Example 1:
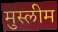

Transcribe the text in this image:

मुस्लीम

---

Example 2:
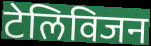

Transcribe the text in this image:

टेलिविजन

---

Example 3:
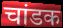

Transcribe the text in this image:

चांडक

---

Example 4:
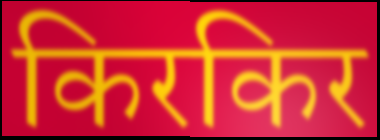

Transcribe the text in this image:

किरकिर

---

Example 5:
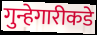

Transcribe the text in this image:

गुन्हेगारीकडे